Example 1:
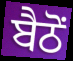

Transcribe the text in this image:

ਬੈਠੋਂ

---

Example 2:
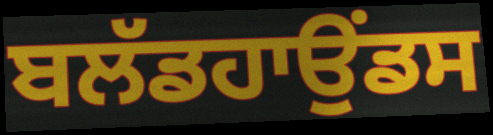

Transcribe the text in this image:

ਬਲੱਡਹਾਉਂਡਸ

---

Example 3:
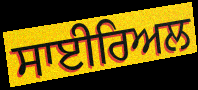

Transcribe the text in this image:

ਸਾਈਰਿਅਲ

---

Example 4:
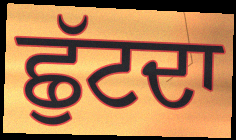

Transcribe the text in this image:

ਛੁੱਟਦਾ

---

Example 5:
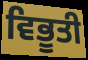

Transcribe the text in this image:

ਵਿਭੂਤੀ